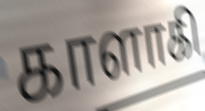
காளாகி